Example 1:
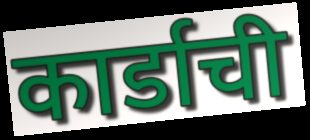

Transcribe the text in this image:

कार्डाची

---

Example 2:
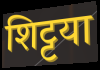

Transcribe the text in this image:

शिट्टया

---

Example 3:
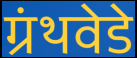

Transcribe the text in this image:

ग्रंथवेडे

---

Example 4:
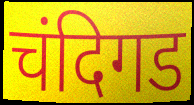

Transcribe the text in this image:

चंदिगड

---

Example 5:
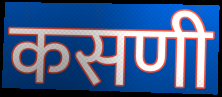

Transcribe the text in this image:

कसणी